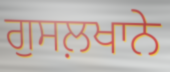
ਗੁਸਲ਼ਖਾਨੇ